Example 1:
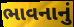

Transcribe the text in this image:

ભાવનાનું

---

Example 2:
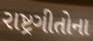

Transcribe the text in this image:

રાષ્ટ્રગીતોના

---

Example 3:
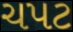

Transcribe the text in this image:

ચપટ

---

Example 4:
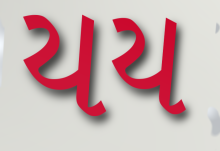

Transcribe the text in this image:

યય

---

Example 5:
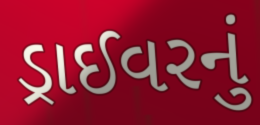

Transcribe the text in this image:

ડ્રાઈવરનું